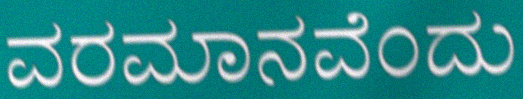
ವರಮಾನವೆಂದು